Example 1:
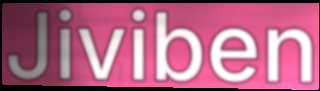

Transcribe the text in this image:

Jiviben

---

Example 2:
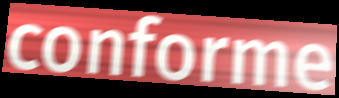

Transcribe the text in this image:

conforme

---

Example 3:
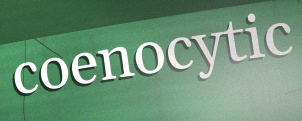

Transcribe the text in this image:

coenocytic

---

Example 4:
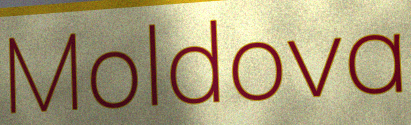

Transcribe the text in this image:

Moldova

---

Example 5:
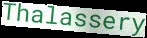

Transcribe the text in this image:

Thalassery